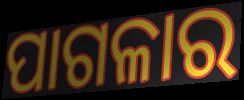
ପାଗଳାର